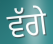
ਵੱਗੇ